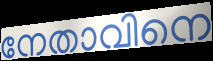
നേതാവിനെ